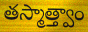
తస్మాత్త్వాం